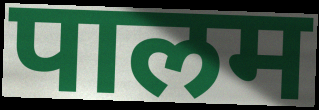
पालम